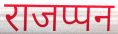
राजप्पन